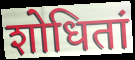
शोधितां